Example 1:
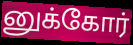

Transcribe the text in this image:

னுக்கோர்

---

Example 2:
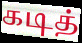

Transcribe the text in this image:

கடித்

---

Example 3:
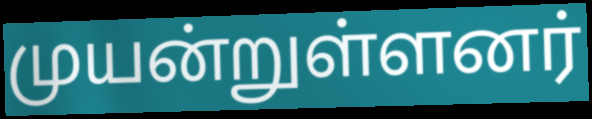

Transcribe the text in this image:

முயன்றுள்ளனர்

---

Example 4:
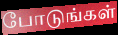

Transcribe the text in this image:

போடுங்கள்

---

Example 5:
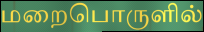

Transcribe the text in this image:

மறைபொருளில்